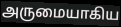
அருமையாகிய